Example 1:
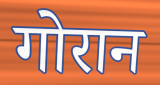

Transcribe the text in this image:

गोरान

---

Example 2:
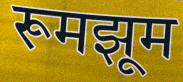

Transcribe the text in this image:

रूमझूम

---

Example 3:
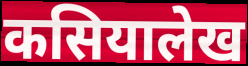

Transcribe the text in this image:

कसियालेख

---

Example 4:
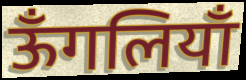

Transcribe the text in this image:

ऊँगलियाँ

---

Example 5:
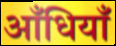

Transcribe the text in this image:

आँधियाँ